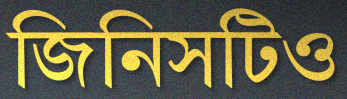
জিনিসটিও